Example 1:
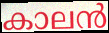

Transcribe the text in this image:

കാലൻ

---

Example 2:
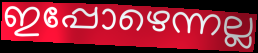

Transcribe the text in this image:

ഇപ്പോഴെന്നല്ല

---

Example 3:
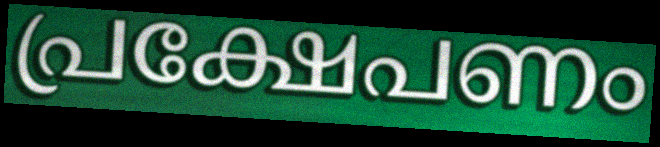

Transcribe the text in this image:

പ്രക്ഷേപണം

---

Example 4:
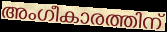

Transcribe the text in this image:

അംഗീകാരത്തിന്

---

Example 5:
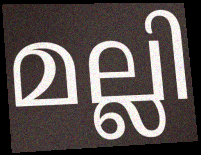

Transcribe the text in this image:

മല്ലി